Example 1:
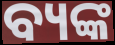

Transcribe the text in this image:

ବ୍ୟଙ୍କ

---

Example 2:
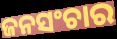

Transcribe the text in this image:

ଜନସଂଚାର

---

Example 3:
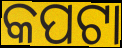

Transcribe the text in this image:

କପଟା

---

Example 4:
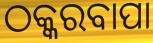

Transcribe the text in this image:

ଠକ୍କରବାପା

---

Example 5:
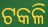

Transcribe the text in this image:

ଟକଳି